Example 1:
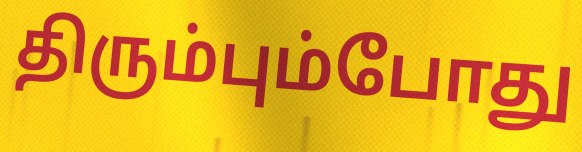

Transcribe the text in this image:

திரும்பும்போது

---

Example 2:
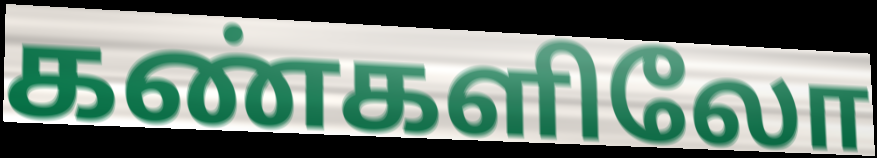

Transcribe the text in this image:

கண்களிலோ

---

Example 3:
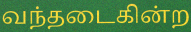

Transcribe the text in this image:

வந்தடைகின்ற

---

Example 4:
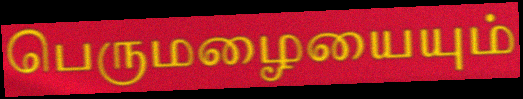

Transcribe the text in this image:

பெருமழையையும்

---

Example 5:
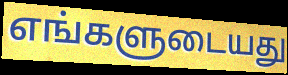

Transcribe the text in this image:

எங்களுடையது